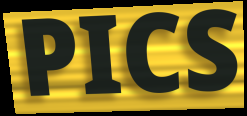
PICS